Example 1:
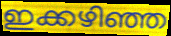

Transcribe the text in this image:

ഇക്കഴിഞ്ഞ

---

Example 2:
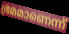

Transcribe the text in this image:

ഭ്രമമാണെന്ന്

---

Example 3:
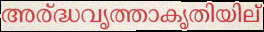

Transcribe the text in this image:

അര്ദ്ധവൃത്താകൃതിയില്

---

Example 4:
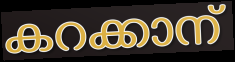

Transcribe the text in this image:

കറക്കാന്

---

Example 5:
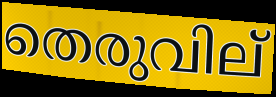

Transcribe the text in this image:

തെരുവില്